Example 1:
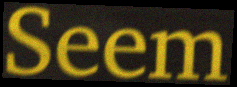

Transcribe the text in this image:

Seem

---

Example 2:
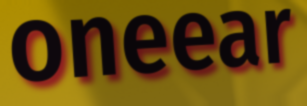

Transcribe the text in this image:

oneear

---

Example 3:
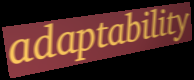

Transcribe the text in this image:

adaptability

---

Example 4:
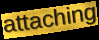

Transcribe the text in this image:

attaching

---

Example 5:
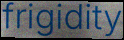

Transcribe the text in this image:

frigidity